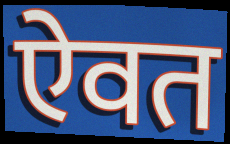
ऐवत